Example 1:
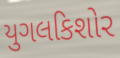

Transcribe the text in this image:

યુગલકિશોર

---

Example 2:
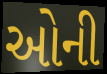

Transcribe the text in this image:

ઓની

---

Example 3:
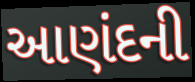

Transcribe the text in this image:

આણંદની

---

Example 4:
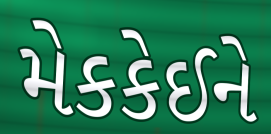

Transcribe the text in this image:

મેકકેઈને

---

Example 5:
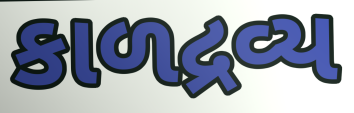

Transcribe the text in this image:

કાળદ્રવ્ય